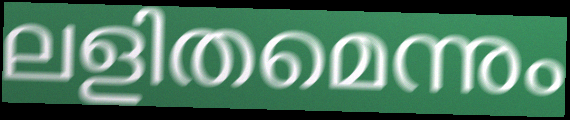
ലളിതമെന്നും